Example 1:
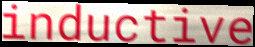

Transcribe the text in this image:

inductive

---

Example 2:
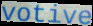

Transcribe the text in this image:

votive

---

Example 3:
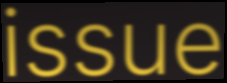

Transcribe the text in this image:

issue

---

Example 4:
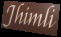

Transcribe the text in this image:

Jhimli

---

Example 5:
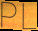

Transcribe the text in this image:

PL